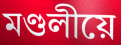
মণ্ডলীয়ে